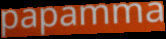
papamma